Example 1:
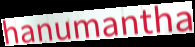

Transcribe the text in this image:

hanumantha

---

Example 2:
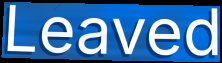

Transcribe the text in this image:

Leaved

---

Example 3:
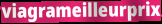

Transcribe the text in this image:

viagrameilleurprix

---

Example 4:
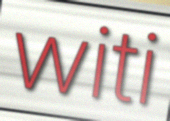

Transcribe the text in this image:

witi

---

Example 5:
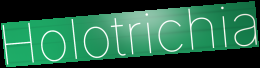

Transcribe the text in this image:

Holotrichia